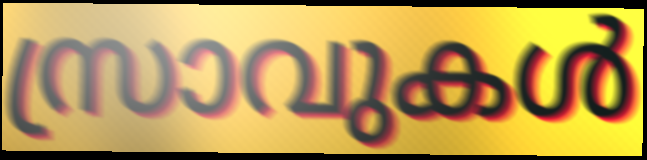
സ്രാവുകൾ